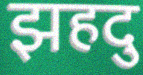
झहदु